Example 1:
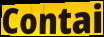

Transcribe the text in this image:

Contai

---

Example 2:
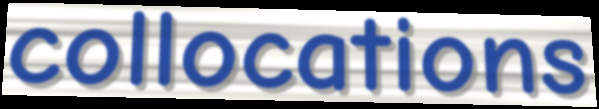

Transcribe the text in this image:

collocations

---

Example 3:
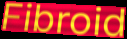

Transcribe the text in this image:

Fibroid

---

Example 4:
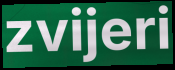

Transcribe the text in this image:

zvijeri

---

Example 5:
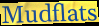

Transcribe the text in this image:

Mudflats